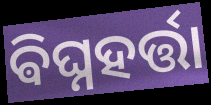
ଵିଘ୍ନହର୍ତ୍ତା